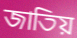
জাতিয়